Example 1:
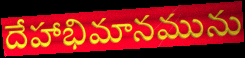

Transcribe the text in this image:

దేహాభిమానమును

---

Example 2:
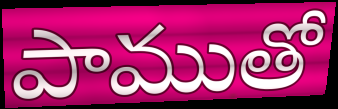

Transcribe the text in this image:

పాముతో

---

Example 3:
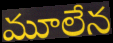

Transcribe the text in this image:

మూలేన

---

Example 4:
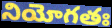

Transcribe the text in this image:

నియోగతః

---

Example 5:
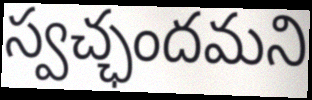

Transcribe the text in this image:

స్వచ్ఛందమని